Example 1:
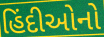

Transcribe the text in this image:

હિંદીઓનો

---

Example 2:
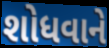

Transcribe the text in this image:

શોધવાને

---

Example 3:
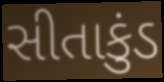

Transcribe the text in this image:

સીતાકુંડ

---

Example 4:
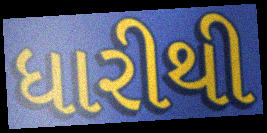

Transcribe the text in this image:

ધારીથી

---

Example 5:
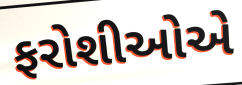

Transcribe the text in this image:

ફરોશીઓએ